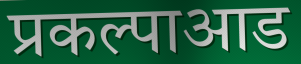
प्रकल्पाआड